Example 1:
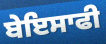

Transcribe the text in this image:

ਬੇਇਸਾਫੀ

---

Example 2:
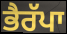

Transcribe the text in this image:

ਭੈਰੱਪਾ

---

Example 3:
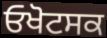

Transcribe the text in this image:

ਓਖੋਟਸਕ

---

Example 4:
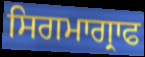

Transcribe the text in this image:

ਸਿਗਮਾਗ੍ਰਾਫ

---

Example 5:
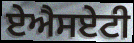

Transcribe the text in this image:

ਏਐਸਏਟੀ